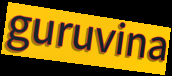
guruvina